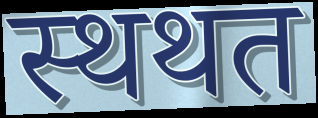
स्थथत